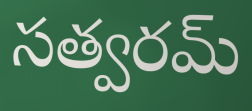
సత్వరమ్